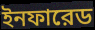
ইনফারেড